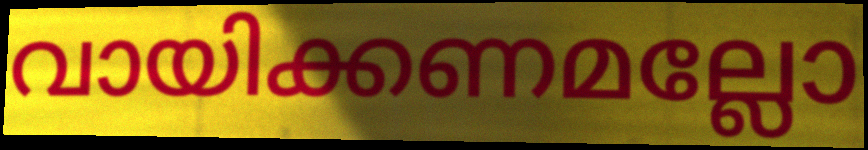
വായിക്കണമല്ലോ